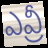
ఎవ్రీ